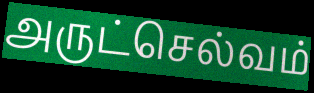
அருட்செல்வம்